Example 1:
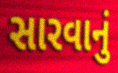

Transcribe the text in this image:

સારવાનું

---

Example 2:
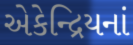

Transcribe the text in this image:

એકેન્દ્રિયનાં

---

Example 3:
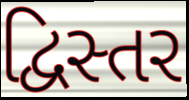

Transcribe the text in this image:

દ્વિસ્તર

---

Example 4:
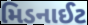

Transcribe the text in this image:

મિડનાઈટ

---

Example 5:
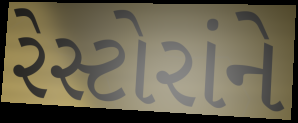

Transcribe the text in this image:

રેસ્ટોરાંને